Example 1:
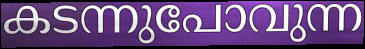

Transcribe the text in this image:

കടന്നുപോവുന്ന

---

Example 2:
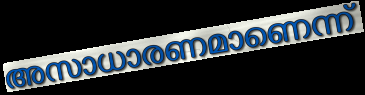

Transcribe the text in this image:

അസാധാരണമാണെന്ന്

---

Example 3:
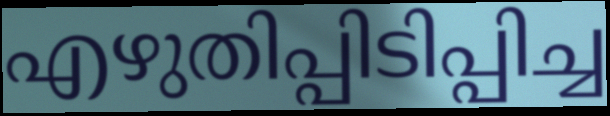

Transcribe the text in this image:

എഴുതിപ്പിടിപ്പിച്ച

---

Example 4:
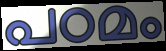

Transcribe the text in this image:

പഠമം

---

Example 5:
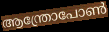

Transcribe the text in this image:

ആന്ത്രോപോൺ